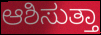
ಆಶಿಸುತ್ತಾ